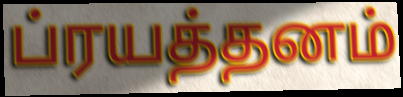
ப்ரயத்தனம்